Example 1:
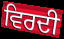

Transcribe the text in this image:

ਵਿਰਦੀ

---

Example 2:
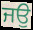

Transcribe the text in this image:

ਜਉ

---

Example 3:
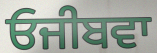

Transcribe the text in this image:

ਓਜੀਬਵਾ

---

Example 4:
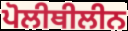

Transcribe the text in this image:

ਪੋਲੀਥੀਲੀਨ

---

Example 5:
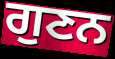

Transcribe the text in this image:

ਗੁਣਨ